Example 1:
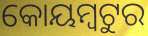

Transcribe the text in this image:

କୋୟମ୍ବଟୁର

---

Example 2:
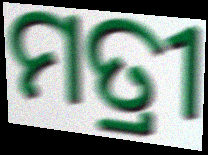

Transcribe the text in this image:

ମତ୍ରୀ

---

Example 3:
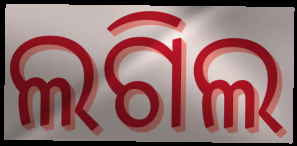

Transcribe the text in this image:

ଲଗିଲ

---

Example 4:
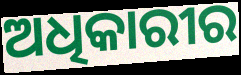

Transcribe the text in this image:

ଅଧିକାରୀର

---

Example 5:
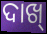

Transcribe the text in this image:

ଦାଖ୍